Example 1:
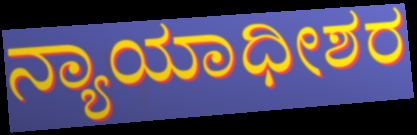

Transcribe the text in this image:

ನ್ಯಾಯಾಧೀಶರ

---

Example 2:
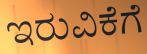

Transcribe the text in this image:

ಇರುವಿಕೆಗೆ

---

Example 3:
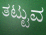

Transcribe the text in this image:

ತಟ್ಟುವ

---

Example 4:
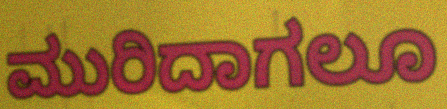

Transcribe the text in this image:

ಮುರಿದಾಗಲೂ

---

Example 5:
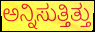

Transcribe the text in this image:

ಅನ್ನಿಸುತ್ತಿತ್ತು